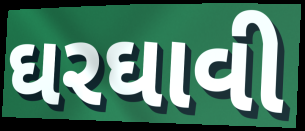
ઘરઘાવી